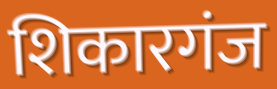
शिकारगंज